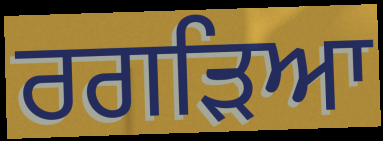
ਰਗੜਿਆ